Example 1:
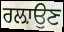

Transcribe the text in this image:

ਰਲ਼ਾਉਣ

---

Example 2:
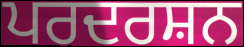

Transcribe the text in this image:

ਪਰਦਰਸ਼ਨ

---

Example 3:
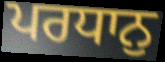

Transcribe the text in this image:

ਪਰਧਾਨੁ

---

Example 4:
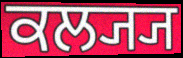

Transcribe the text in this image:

ਕਲ੍ਯ੍ਯ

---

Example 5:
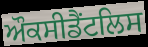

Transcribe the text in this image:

ਔਕਸੀਡੈਂਟਲਿਸ